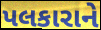
પલકારાને